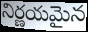
నిర్ణయమైన